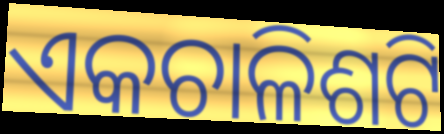
ଏକଚାଳିଶଟି